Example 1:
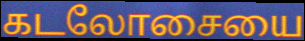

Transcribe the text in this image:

கடலோசையை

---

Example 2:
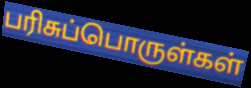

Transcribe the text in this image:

பரிசுப்பொருள்கள்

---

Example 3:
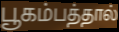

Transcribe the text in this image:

பூகம்பத்தால்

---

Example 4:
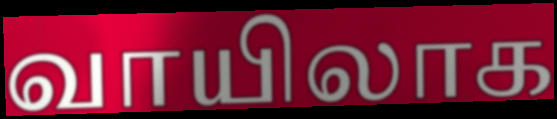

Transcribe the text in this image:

வாயிலாக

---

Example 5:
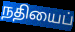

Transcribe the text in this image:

நதியைப்